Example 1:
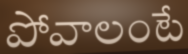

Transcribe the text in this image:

పోవాలంటే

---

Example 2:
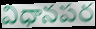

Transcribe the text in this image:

విధానపర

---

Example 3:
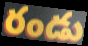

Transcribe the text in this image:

రండు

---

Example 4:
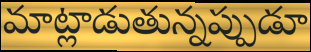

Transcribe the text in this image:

మాట్లాడుతున్నప్పుడూ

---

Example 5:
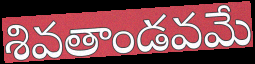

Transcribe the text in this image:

శివతాండవమే